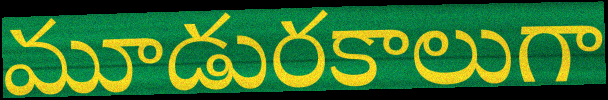
మూడురకాలుగా